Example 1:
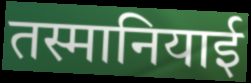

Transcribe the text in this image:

तस्मानियाई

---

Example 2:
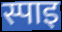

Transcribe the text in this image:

स्पाइ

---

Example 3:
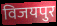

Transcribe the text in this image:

विजयपुर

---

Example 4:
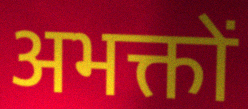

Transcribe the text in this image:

अभक्तों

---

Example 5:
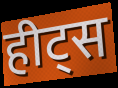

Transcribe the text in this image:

हीट्स